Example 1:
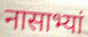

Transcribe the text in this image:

नासाभ्यां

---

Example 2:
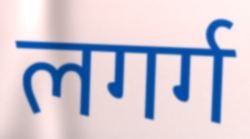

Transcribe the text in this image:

लगर्ग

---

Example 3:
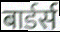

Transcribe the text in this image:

बार्डर्स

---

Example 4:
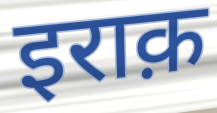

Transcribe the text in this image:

इराक़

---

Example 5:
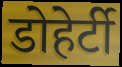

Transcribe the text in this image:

डोहेर्टी